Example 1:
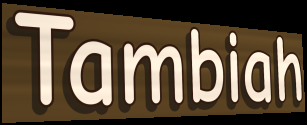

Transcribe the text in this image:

Tambiah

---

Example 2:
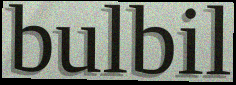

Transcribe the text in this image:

bulbil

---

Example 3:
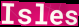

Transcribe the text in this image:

Isles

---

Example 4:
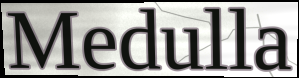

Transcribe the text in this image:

Medulla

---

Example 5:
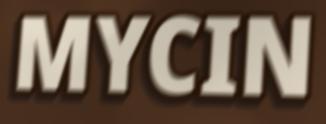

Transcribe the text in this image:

MYCIN